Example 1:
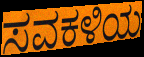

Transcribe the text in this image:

ಸವಕಳಿಯ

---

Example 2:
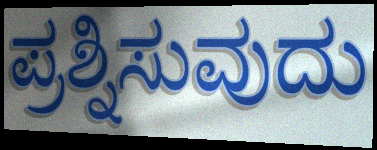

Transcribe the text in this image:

ಪ್ರಶ್ನಿಸುವುದು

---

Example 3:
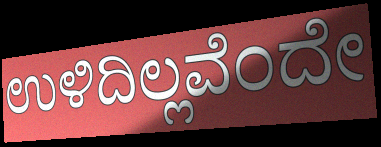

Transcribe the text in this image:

ಉಳಿದಿಲ್ಲವೆಂದೇ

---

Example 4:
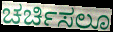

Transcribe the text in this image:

ಚರ್ಚಿಸಲೂ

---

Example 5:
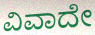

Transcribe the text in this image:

ವಿವಾದೇ